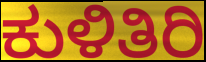
ಕುಳಿತಿರಿ